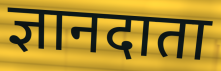
ज्ञानदाता